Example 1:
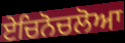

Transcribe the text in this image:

ਏਚਿਨੋਚਲੋਆ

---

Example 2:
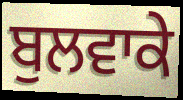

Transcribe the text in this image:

ਬੁਲਵਾਕੇ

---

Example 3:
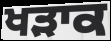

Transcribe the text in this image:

ਖੜਾਕ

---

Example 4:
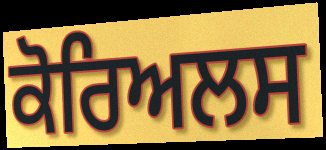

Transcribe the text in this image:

ਕੋਰਿਅਲਸ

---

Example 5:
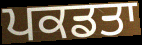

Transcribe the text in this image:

ਪਕਡਤਾ